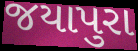
જયાપુરા